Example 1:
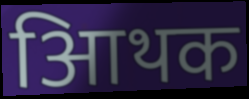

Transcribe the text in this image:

आिथक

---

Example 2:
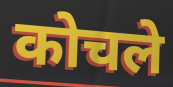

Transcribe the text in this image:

कोचले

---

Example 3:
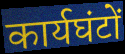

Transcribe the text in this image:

कार्यघंटों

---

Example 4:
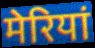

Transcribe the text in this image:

मेरियां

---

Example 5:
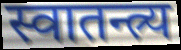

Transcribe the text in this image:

स्वातन्त्र्य